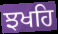
ਝਖਹਿ